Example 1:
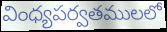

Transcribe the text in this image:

వింధ్యపర్వతములలో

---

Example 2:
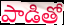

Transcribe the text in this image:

పాడితో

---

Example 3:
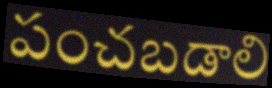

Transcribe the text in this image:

పంచబడాలి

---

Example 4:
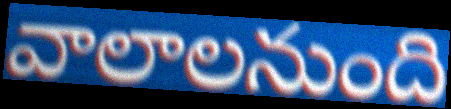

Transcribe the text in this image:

వాలాలనుంది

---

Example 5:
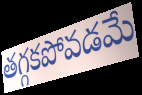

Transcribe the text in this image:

తగ్గకపోవడమే